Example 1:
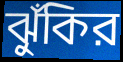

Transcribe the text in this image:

ঝুঁকির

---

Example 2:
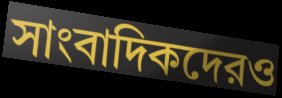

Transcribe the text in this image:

সাংবাদিকদেরও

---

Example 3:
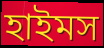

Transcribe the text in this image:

হাইমস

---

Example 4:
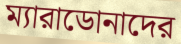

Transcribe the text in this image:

ম্যারাডোনাদের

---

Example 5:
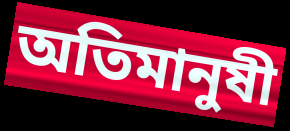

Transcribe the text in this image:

অতিমানুষী